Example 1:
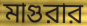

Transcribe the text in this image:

মাগুরার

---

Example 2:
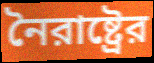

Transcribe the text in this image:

নৈরাষ্ট্রের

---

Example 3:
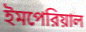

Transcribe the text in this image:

ইমপেরিয়াল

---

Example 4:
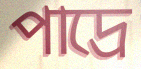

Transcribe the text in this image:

পাদ্রে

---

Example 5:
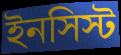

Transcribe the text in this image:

ইনসিস্ট